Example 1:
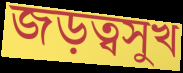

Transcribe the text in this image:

জড়ত্বসুখ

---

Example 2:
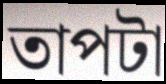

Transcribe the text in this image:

তাপটা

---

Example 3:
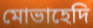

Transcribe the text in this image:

মোভাহেদি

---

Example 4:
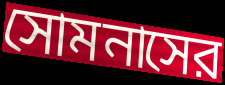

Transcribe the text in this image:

সোমনাসের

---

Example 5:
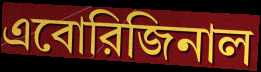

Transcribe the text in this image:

এবোরিজিনাল